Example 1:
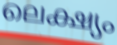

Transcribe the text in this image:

ലെക്ഷ്യം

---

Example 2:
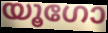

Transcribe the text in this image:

യൂഗോ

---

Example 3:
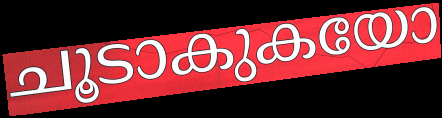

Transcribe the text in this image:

ചൂടാകുകയോ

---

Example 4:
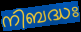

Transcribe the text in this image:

നിബദ്ധഃ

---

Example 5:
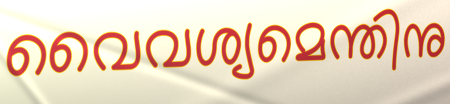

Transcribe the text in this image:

വൈവശ്യമെന്തിനു